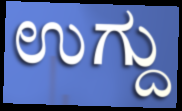
ಉಗ್ದು